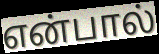
என்பால்